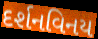
દર્શનવિનય